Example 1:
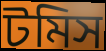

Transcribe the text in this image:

টমিস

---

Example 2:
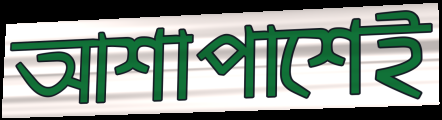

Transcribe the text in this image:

আশাপাশেই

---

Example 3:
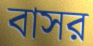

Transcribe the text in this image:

বাসর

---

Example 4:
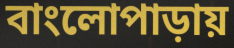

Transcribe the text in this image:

বাংলোপাড়ায়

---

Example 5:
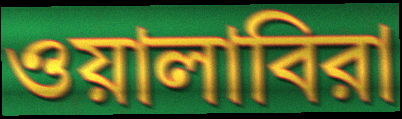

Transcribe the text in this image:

ওয়ালাবিরা